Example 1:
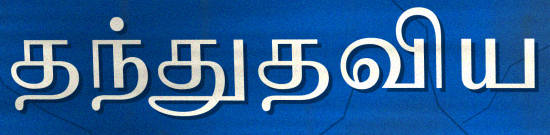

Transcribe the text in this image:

தந்துதவிய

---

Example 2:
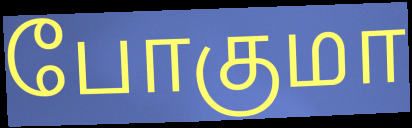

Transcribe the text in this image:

போகுமா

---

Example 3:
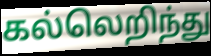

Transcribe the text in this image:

கல்லெறிந்து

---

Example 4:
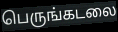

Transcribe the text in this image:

பெருங்கடலை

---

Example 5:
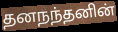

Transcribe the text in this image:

தனநந்தனின்